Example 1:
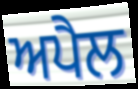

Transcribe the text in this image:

ਅਪੈਲ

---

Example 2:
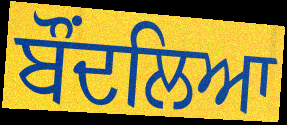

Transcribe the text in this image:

ਬੌਂਦਲਿਆ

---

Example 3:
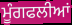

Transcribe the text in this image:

ਮੂੰਗਫਲੀਆਂ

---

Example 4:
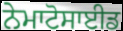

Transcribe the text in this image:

ਨੇਮਾਟੋਸਾਈਡ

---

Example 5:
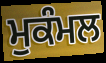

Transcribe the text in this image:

ਮੁਕੰਮਲ